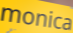
monica